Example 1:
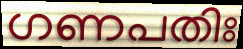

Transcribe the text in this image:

ഗണപതിഃ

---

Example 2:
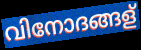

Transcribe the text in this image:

വിനോദങ്ങള്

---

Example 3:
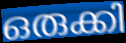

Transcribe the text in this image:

ഒരുക്കി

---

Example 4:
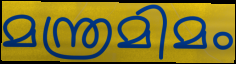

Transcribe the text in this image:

മന്ത്രമിമം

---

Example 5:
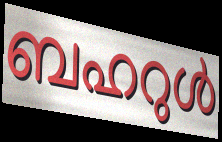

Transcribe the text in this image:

ബഹറുൾ